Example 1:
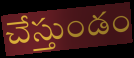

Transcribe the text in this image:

చేస్తుండం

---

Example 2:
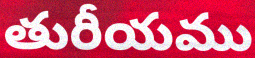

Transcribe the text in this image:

తురీయము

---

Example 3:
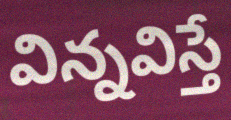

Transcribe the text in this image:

విన్నవిస్తే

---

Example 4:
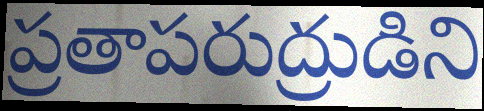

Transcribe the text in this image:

ప్రతాపరుద్రుడిని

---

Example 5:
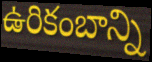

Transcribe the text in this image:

ఉరికంబాన్ని